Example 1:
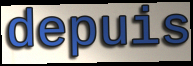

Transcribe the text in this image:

depuis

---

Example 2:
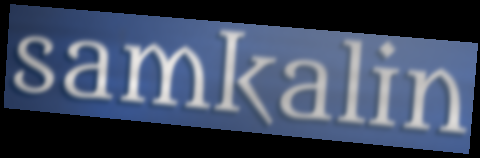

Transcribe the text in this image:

samkalin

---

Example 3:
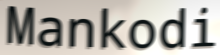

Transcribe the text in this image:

Mankodi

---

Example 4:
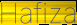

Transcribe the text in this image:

Hafiza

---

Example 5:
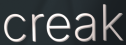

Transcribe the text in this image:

creak